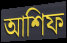
আশিফ